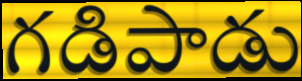
గడిపాడు